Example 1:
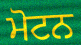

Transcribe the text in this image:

ਮੋਟਨ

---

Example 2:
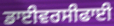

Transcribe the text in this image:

ਡਾਈਵਰਸੀਫਾਈ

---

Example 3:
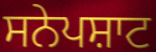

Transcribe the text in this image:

ਸਨੇਪਸ਼ਾਟ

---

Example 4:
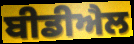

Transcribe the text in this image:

ਬੀਡੀਐਲ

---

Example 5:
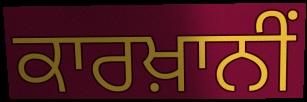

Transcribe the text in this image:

ਕਾਰਖ਼ਾਨੀਂ